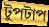
টুপটাপ